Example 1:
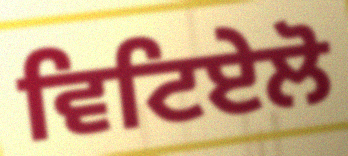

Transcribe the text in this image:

ਵਿਟਿਏਲੋ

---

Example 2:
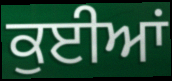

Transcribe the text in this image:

ਕੁਈਆਂ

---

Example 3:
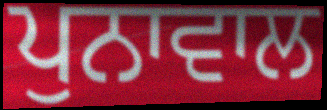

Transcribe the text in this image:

ਪੁਨਾਵਾਲ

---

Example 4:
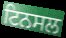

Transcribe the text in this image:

ਟਿਨਸਲ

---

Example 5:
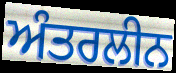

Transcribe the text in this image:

ਅੰਤਰਲੀਨ